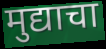
मुद्याचा